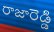
రాజారెడ్డి